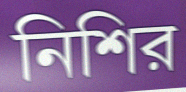
নিশির